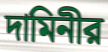
দামিনীর